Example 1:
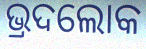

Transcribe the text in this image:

ଭ୍ରଦଲୋକ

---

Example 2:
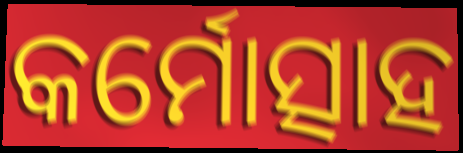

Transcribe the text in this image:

କର୍ମୋତ୍ସାହ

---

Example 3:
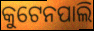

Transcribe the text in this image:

କୁଟେନପାଲି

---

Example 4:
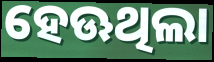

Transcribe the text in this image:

ହେଊଥିଲା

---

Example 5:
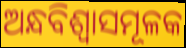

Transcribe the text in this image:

ଅନ୍ଧବିଶ୍ୱାସମୂଳକ